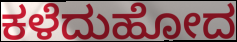
ಕಳೆದುಹೋದ